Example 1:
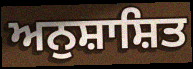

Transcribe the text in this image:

ਅਨੁਸ਼ਾਸ਼ਿਤ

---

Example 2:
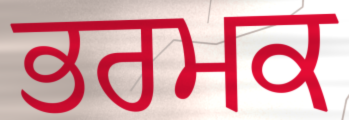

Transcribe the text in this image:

ਭਰਮਕ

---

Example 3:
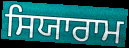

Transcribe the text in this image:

ਸਿਯਾਰਾਮ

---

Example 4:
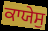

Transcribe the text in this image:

ਕਾਯੇਸੁ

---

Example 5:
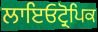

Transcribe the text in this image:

ਲਾਇਓਟ੍ਰੋਪਿਕ